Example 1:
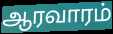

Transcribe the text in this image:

ஆரவாரம்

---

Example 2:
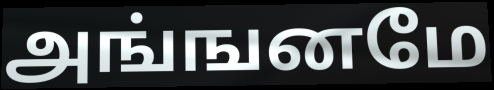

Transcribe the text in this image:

அங்ஙனமே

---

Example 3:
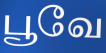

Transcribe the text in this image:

பூவே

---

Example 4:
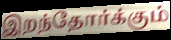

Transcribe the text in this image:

இறந்தோர்க்கும்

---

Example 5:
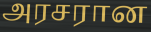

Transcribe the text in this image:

அரசரான